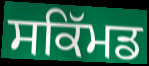
ਸਕਿੱਮਡ